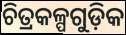
ଚିତ୍ରକଳ୍ପଗୁଡ଼ିକ